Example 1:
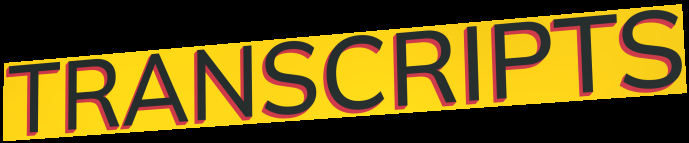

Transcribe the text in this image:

TRANSCRIPTS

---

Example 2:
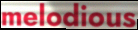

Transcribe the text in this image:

melodious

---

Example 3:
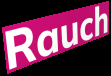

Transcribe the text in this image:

Rauch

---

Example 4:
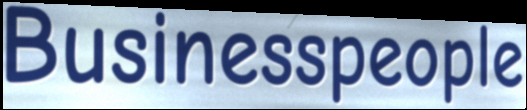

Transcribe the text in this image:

Businesspeople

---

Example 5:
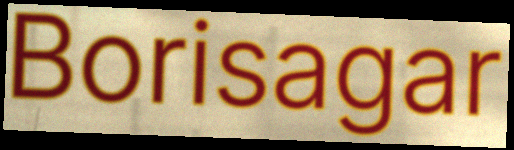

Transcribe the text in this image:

Borisagar